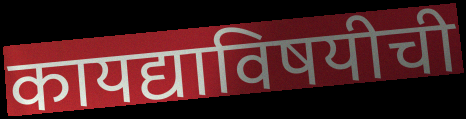
कायद्याविषयीची